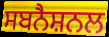
ਸਬਨੈਸ਼ਨਲ